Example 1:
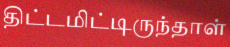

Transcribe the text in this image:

திட்டமிட்டிருந்தாள்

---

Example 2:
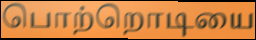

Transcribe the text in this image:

பொற்றொடியை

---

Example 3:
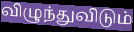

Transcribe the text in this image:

விழுந்துவிடும்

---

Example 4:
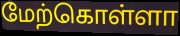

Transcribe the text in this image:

மேற்கொள்ளா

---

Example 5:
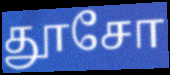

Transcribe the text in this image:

தூசோ